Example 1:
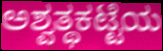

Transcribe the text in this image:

ಅಶ್ವತ್ಥಕಟ್ಟೆಯ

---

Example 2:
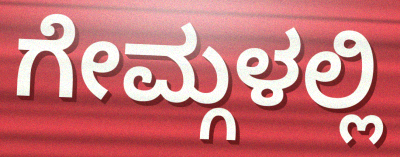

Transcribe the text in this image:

ಗೇಮ್ಗಳಲ್ಲಿ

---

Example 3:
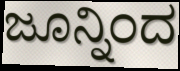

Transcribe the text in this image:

ಜೂನ್ನಿಂದ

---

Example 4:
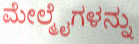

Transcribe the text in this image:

ಮೇಲ್ಮೈಗಳನ್ನು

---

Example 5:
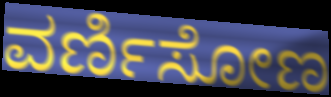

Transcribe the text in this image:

ವರ್ಣಿಸೋಣ